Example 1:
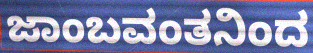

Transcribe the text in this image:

ಜಾಂಬವಂತನಿಂದ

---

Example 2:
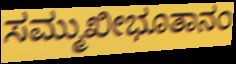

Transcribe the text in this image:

ಸಮ್ಮುಖೀಭೂತಾನಂ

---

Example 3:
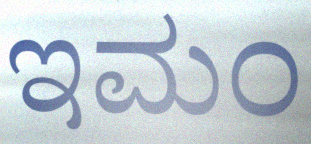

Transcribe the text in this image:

ಇಮಂ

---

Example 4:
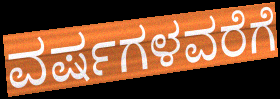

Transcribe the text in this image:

ವರ್ಷಗಳವರೆಗೆ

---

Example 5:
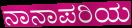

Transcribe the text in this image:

ನಾನಾಪರಿಯ